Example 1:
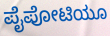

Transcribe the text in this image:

ಪೈಪೋಟಿಯೂ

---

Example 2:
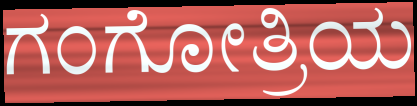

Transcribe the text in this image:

ಗಂಗೋತ್ರಿಯ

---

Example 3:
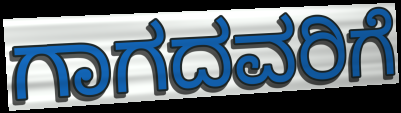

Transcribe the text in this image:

ಗಾಗದವರಿಗೆ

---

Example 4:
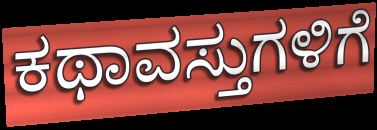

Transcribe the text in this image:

ಕಥಾವಸ್ತುಗಳಿಗೆ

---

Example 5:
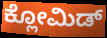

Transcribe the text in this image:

ಕ್ಲೋಮಿಡ್